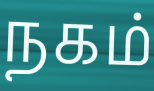
நகம்